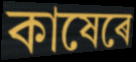
কাষেৰে